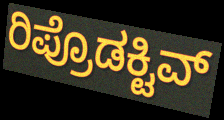
ರಿಪ್ರೊಡಕ್ಟಿವ್